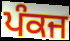
ਪੰਕਜ